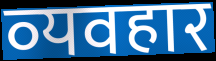
व्‍यवहार